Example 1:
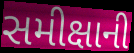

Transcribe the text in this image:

સમીક્ષાની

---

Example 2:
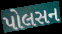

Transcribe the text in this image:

પોલસન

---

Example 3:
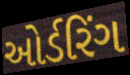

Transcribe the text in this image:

ઓર્ડરિંગ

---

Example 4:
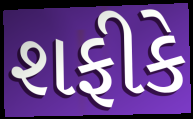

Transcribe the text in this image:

શફીકે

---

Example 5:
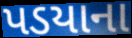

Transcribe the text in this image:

પડયાના